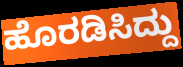
ಹೊರಡಿಸಿದ್ದು